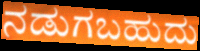
ನಡುಗಬಹುದು